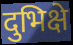
दुभिक्षे